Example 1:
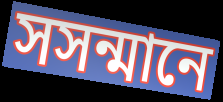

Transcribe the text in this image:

সসন্মানে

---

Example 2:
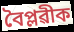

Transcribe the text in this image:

বৈপ্লৱীক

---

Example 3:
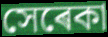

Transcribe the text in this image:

সেৰেকা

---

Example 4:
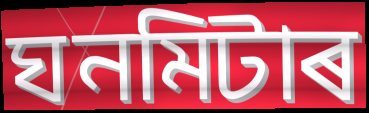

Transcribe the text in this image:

ঘনমিটাৰ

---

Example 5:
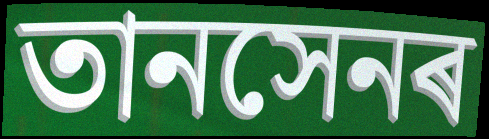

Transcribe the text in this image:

তানসেনৰ